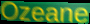
Ozeane